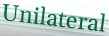
Unilateral